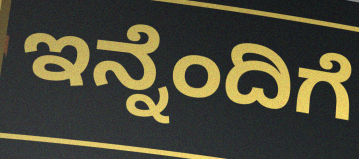
ಇನ್ನೆಂದಿಗೆ